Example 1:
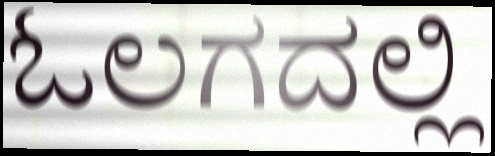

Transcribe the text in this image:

ಓಲಗದಲ್ಲಿ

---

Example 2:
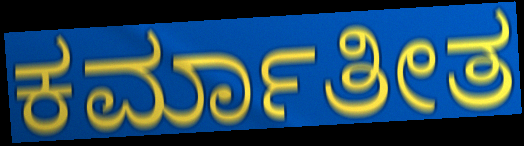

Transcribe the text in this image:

ಕರ್ಮಾತೀತ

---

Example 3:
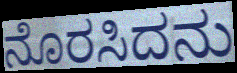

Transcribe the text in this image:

ನೊರಸಿದನು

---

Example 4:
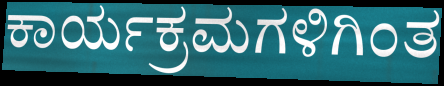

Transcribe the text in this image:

ಕಾರ್ಯಕ್ರಮಗಳಿಗಿಂತ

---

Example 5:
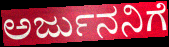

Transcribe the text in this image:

ಅರ್ಜುನನಿಗೆ